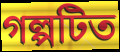
গল্পটিত